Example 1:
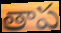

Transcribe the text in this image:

తాప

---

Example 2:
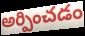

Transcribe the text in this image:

అర్పించడం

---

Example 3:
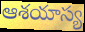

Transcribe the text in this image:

ఆశయాస్య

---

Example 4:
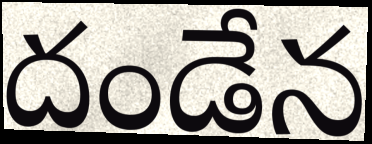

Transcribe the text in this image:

దండేన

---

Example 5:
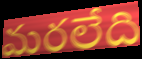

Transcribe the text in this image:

మరలేది